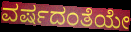
ವರ್ಷದಂತೆಯೇ